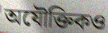
অযৌক্তিকও